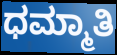
ಧಮ್ಮಾತಿ